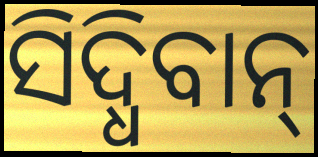
ସିଦ୍ଧିବାନ୍